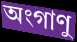
অংগাণু